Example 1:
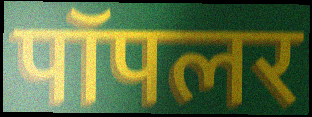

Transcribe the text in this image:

पॉपलर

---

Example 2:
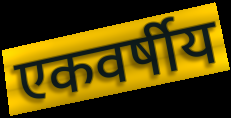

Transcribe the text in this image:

एकवर्षीय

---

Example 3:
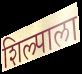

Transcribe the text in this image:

शिल्पाला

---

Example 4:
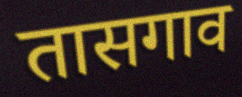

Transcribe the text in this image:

तासगाव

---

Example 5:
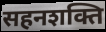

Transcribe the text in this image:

सहनशक्ति